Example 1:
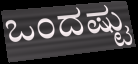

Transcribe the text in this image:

ಒಂದಷ್ಟು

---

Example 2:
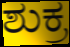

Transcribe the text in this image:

ಶುಕ್ರ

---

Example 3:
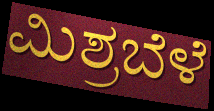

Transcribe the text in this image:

ಮಿಶ್ರಬೆಳೆ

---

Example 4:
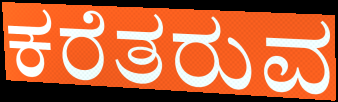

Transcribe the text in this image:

ಕರೆತರುವ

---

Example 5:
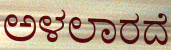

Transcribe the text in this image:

ಅಳಲಾರದೆ